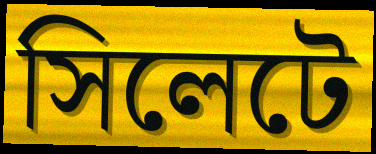
সিলেটে